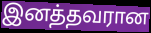
இனத்தவரான